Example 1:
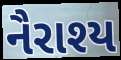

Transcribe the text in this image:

નૈરાશ્ય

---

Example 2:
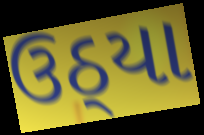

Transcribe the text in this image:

ઉઠ્યા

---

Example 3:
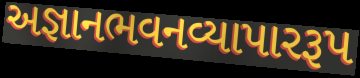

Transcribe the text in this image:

અજ્ઞાનભવનવ્યાપારરૂપ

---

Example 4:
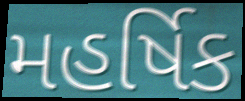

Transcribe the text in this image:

મહર્ષિક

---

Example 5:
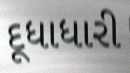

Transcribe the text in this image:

દૂધાધારી